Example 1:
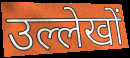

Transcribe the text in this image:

उल्लेखों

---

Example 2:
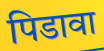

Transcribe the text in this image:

पिडावा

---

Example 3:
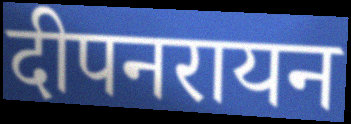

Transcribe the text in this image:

दीपनरायन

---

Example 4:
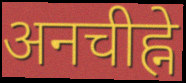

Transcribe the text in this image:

अनचीह्ने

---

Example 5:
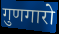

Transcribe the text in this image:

गुणगारो